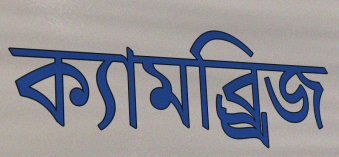
ক্যামব্র্রিজ